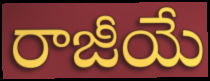
రాజీయే